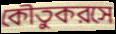
কৌতুকরসে